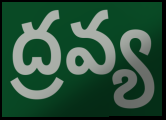
ద్రవ్య